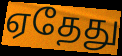
ஏதேது